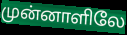
முன்னாளிலே